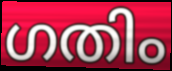
ഗതിം